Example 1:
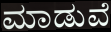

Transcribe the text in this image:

ಮಾಡುವೆ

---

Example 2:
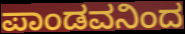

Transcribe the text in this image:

ಪಾಂಡವನಿಂದ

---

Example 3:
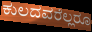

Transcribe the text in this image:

ಕುಲದವರೆಲ್ಲರೂ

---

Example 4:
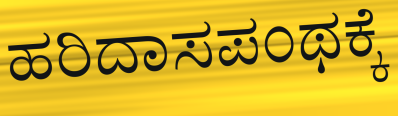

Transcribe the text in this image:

ಹರಿದಾಸಪಂಥಕ್ಕೆ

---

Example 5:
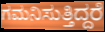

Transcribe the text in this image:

ಗಮನಿಸುತ್ತಿದ್ದರೆ